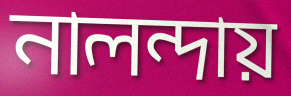
নালন্দায়